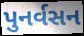
પુનર્વસન